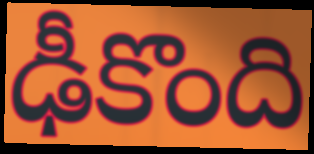
ఢీకొంది